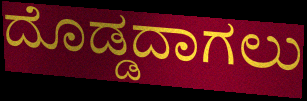
ದೊಡ್ಡದಾಗಲು